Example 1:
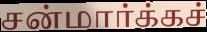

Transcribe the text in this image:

சன்மார்க்கச்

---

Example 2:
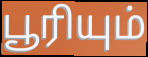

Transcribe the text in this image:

பூரியும்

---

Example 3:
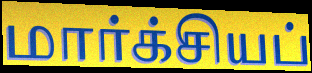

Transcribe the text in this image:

மார்க்சியப்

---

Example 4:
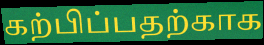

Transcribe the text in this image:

கற்பிப்பதற்காக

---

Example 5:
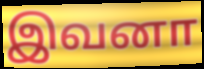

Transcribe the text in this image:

இவனா